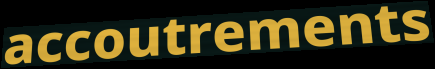
accoutrements